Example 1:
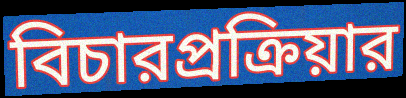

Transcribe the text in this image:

বিচারপ্রক্রিয়ার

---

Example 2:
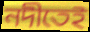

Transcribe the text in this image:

নদীতেই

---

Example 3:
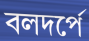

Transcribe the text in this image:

বলদর্পে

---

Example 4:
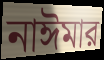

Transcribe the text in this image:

নাঈমার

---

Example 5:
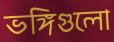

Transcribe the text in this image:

ভঙ্গিগুলো